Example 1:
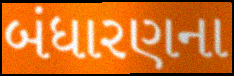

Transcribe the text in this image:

બંધારણના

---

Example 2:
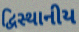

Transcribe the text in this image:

દ્વિસ્થાનીય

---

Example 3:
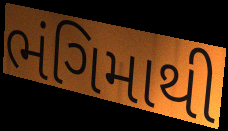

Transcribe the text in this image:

ભંગિમાથી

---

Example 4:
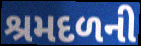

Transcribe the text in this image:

શ્રમદળની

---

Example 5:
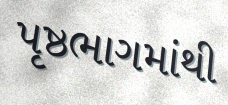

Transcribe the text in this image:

પૃષ્ઠભાગમાંથી